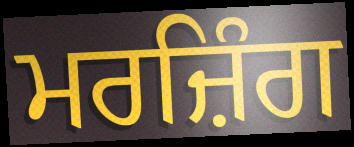
ਮਰਜ਼ਿੰਗ